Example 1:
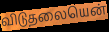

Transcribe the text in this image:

விடுதலையென்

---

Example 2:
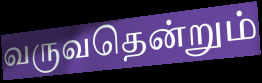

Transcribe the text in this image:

வருவதென்றும்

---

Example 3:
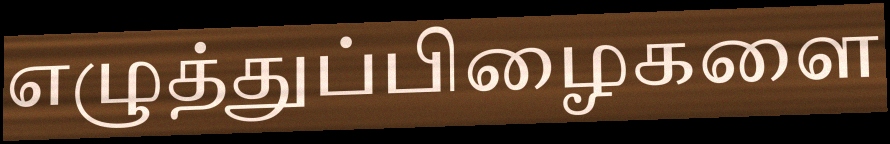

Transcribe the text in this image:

எழுத்துப்பிழைகளை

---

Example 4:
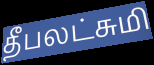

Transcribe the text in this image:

தீபலட்சுமி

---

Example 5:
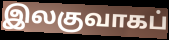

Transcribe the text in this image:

இலகுவாகப்